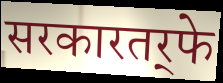
सरकारतर्फे